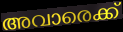
അവാരെക്ക്